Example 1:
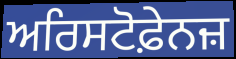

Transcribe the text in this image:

ਅਰਿਸਟੋਫ਼ੇਨਜ਼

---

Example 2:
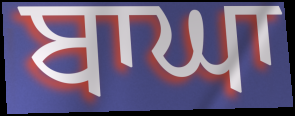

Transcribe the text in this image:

ਬਾਘਾ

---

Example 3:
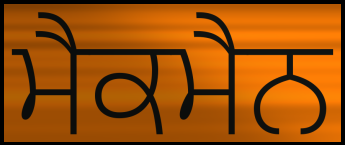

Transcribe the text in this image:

ਮੈਕਮੈਨ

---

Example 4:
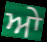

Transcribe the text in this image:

ਆੇ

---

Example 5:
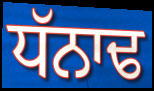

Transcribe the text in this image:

ਧੱਨਾਢ